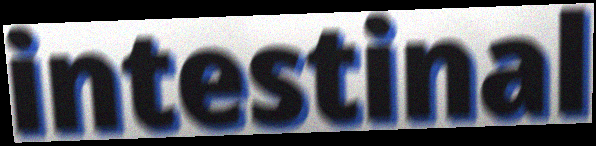
intestinal